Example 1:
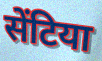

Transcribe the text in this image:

सेंटिया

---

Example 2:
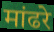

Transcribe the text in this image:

मांढरे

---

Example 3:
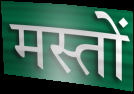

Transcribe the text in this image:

मस्तों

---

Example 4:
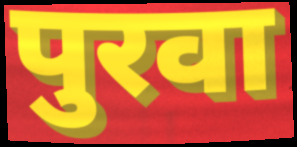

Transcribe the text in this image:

पुरवा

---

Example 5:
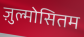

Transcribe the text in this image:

ज़ुल्मोसितम